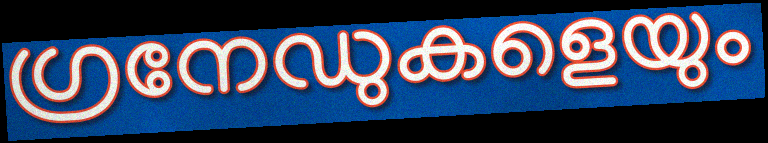
ഗ്രനേഡുകളെയും